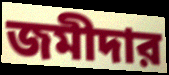
জমীদার